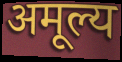
अमूल्‍य